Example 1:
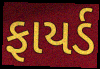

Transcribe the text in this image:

ફાયર્ડ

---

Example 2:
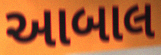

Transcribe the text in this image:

આબાલ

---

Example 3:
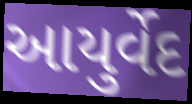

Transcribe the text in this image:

આયુર્વેદ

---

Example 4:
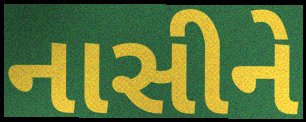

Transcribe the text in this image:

નાસીને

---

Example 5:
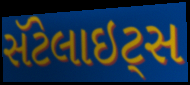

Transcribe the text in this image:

સૅટેલાઇટ્સ